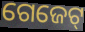
ଗେଜେଟ୍